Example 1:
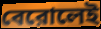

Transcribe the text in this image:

বেরোলেই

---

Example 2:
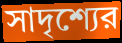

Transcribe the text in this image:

সাদৃশ্যের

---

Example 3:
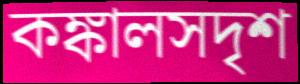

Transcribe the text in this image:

কঙ্কালসদৃশ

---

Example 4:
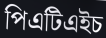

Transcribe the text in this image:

পিএটিএইচ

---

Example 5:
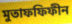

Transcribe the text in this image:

মুতাফফিফীন